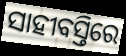
ସାହୀବସ୍ତିରେ